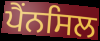
ਪੈਂਨਸਿਲ